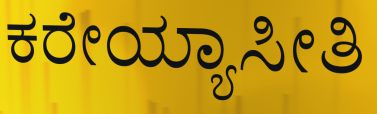
ಕರೇಯ್ಯಾಸೀತಿ